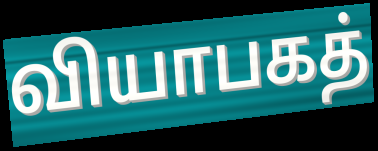
வியாபகத்